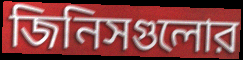
জিনিসগুলোর